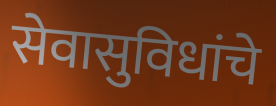
सेवासुविधांचे